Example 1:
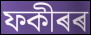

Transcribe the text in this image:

ফকীৰৰ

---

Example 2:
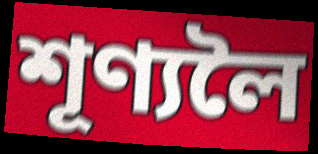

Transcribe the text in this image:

শূণ্যলৈ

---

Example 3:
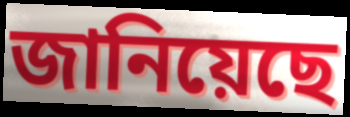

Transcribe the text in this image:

জানিয়েছে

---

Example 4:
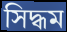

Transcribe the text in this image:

সিদ্ধম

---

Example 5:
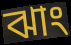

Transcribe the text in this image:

ঝাং